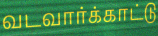
வடவார்க்காட்டு